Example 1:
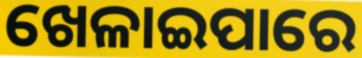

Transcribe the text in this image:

ଖେଳାଇପାରେ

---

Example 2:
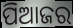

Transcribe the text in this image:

ପିଆଜର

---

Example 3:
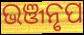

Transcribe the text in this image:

ଭଞ୍ଜନୃପ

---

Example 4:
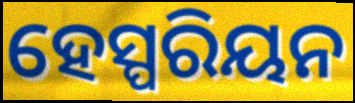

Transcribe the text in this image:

ହେସ୍ପରିୟନ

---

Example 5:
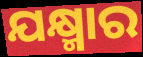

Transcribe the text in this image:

ଯକ୍ଷ୍ମାର